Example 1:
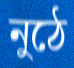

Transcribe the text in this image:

নুঠে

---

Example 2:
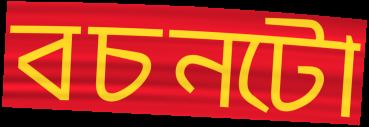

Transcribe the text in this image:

বচনটো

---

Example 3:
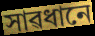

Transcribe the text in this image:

সাৱধানে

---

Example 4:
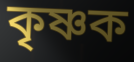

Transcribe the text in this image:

কৃষ্ণক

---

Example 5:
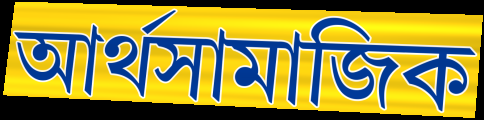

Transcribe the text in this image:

আৰ্থসামাজিক